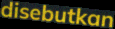
disebutkan